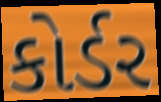
કોર્ડર